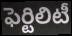
ఫెర్టిలిటీ